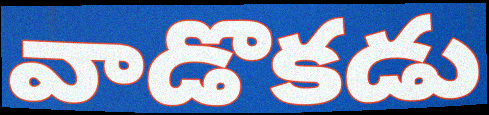
వాడొకడు